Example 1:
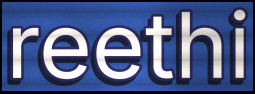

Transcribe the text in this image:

reethi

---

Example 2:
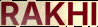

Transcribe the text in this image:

RAKHI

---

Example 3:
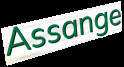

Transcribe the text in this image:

Assange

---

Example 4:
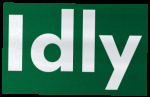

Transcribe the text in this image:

Idly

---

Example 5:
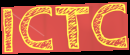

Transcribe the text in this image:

ICTC